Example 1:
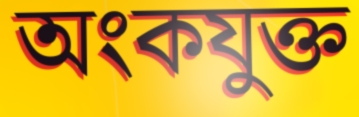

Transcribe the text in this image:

অংকযুক্ত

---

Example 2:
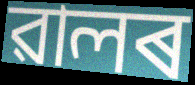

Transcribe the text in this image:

ৱালৰ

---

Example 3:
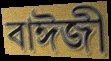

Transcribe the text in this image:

বাঈজী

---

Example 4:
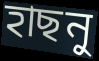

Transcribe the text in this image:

হাছনু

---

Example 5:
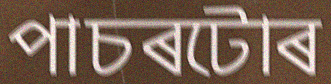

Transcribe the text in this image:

পাচৰটোৰ